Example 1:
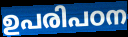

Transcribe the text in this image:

ഉപരിപഠന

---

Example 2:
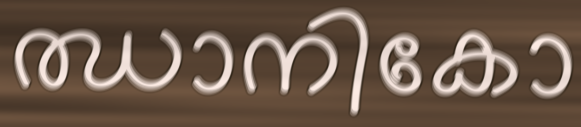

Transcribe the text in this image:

ഝാനികോ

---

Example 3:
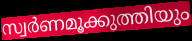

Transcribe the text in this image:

സ്വർണമൂക്കുത്തിയും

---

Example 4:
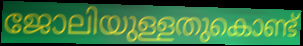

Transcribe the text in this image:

ജോലിയുള്ളതുകൊണ്ട്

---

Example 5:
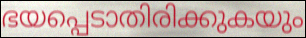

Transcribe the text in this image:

ഭയപ്പെടാതിരിക്കുകയും